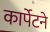
कार्पेटने